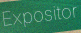
Expositor